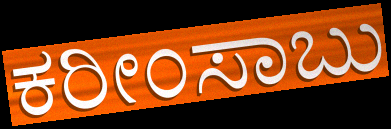
ಕರೀಂಸಾಬು